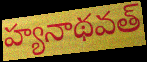
హ్యనాథవత్